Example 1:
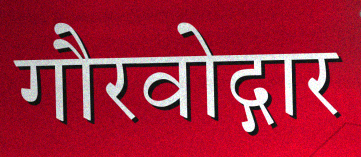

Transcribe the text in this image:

गौरवोद्गार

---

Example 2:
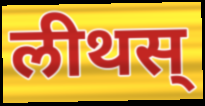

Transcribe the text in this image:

लीथस्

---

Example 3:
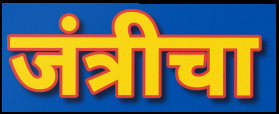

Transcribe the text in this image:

जंत्रीचा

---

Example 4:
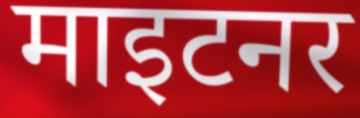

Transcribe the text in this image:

माइटनर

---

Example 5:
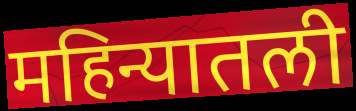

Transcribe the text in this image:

महिन्यातली